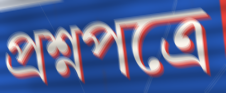
প্রশ্নপত্রে